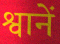
श्वानें